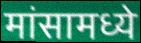
मांसामध्ये